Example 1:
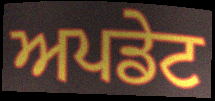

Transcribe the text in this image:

ਅਪਡੇਟ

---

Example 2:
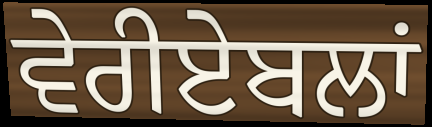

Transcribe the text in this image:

ਵੇਰੀਏਬਲਾਂ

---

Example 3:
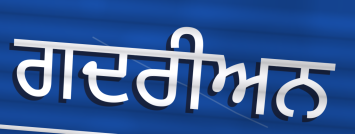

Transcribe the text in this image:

ਗਦਰੀਅਨ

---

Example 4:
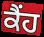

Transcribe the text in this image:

ਕੈਂਹ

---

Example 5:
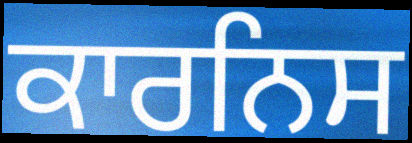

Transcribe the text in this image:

ਕਾਰਨਿਸ